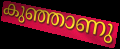
കുഞ്ഞാണു